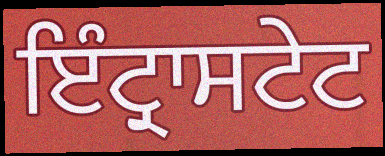
ਇੰਟ੍ਰਾਸਟੇਟ